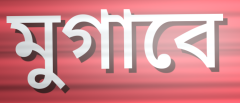
মুগাবে